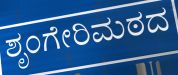
ಶೃಂಗೇರಿಮಠದ